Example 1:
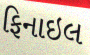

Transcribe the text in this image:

ફિનાઇલ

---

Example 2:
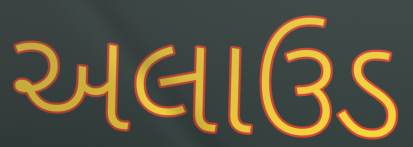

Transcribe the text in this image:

અલાઉડ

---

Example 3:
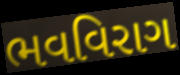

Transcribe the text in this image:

ભવવિરાગ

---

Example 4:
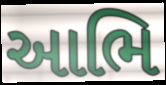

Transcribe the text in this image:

આભિ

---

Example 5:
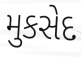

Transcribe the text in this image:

મુકસેદ